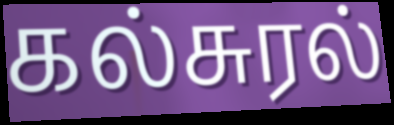
கல்சுரல்